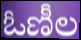
ఓణీల